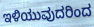
ಇಳಿಯುವುದರಿಂದ